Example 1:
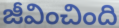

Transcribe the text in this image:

జీవించింది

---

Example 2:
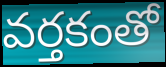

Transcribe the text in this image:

వర్తకంతో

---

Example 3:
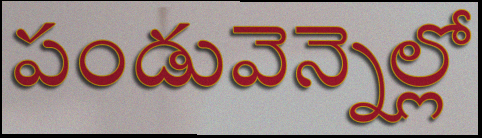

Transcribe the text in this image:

పండువెన్నెల్లో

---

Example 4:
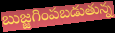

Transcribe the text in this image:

బుజ్జగింపబడుతున్న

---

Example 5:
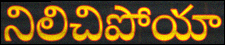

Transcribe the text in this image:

నిలిచిపోయా